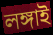
লঙ্গাই